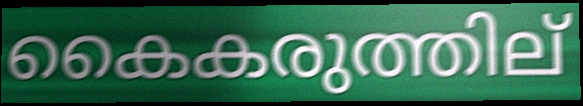
കൈകരുത്തില്